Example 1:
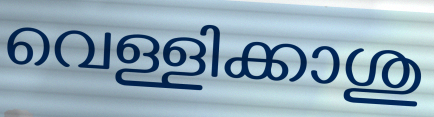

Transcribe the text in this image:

വെള്ളിക്കാശു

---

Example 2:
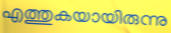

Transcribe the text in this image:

എത്തുകയായിരുന്നു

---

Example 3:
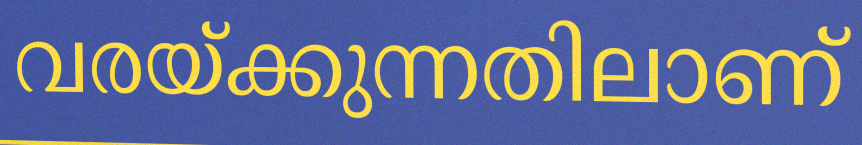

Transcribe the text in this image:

വരയ്ക്കുന്നതിലാണ്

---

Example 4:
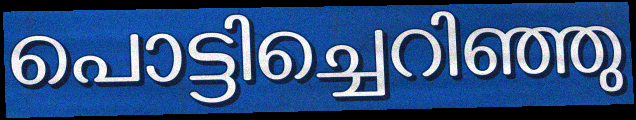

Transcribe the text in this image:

പൊട്ടിച്ചെറിഞ്ഞു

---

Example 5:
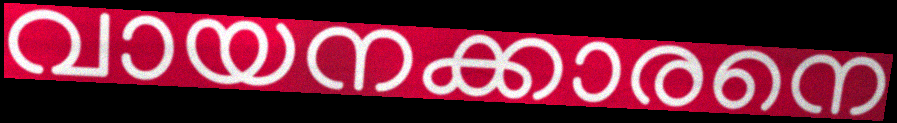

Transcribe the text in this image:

വായനക്കാരനെ